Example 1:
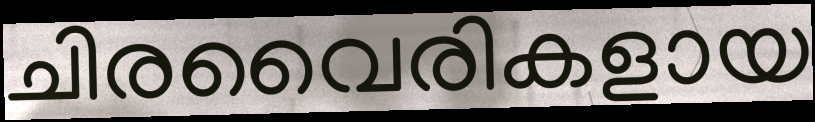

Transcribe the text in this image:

ചിരവൈരികളായ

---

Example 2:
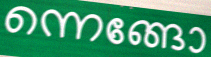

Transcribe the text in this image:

ന്നെങ്ങോ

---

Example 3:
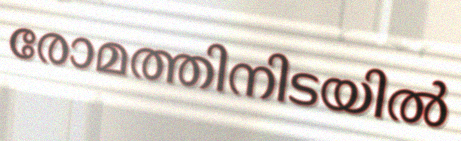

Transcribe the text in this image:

രോമത്തിനിടയിൽ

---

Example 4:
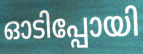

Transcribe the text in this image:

ഓടിപ്പോയി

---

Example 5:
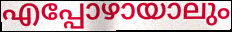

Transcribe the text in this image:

എപ്പോഴായാലും